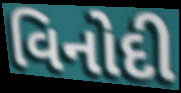
વિનોદી